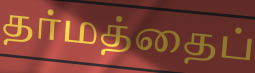
தர்மத்தைப்